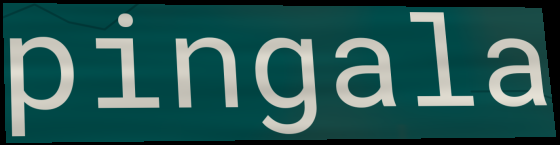
pingala